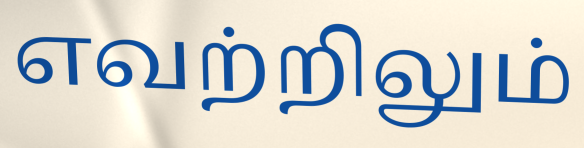
எவற்றிலும்